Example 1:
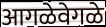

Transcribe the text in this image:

आगळेवेगळे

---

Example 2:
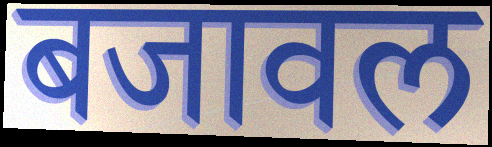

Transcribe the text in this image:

बजावल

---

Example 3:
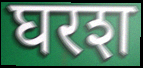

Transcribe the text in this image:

घरश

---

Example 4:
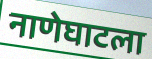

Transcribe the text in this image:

नाणेघाटला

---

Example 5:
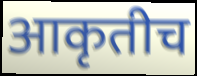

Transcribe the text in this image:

आकृतीच